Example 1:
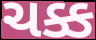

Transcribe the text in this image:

ચક્ક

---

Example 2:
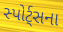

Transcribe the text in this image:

સ્પોર્ટ્સના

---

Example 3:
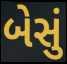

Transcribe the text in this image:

બેસું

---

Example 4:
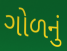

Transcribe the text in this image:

ગોળનું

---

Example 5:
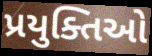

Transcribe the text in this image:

પ્રયુક્તિઓ